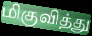
மிகுவித்து